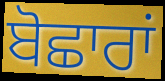
ਬੋਛਾਰਾਂ